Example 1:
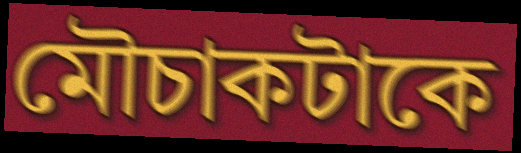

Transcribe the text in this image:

মৌচাকটাকে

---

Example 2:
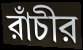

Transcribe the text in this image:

রাঁচীর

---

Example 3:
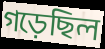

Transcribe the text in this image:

গড়েছিল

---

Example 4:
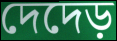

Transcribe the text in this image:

দেদেড়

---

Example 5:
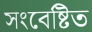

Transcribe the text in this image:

সংবেষ্টিত